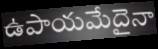
ఉపాయమేదైనా